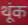
थूंक